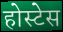
होस्टेस